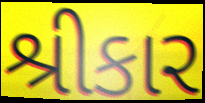
શ્રીકાર